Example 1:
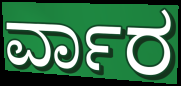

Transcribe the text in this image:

ರ್ವಾರ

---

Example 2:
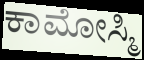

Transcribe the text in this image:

ಕಾಮೋಸ್ಮಿ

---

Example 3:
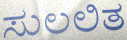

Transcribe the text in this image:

ಸುಲಲಿತ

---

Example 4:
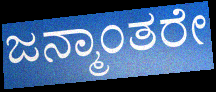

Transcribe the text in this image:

ಜನ್ಮಾಂತರೇ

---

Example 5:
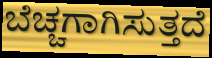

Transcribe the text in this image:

ಬೆಚ್ಚಗಾಗಿಸುತ್ತದೆ